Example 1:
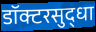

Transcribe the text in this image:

डॉक्टरसुद्धा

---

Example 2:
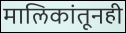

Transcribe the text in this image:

मालिकांतूनही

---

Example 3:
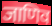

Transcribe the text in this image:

जाणिव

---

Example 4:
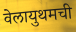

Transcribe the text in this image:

वेलायुथमची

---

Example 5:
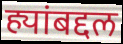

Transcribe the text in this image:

ह्यांबद्दल